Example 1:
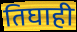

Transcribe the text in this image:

तिघाही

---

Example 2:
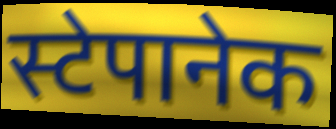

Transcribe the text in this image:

स्टेपानेक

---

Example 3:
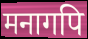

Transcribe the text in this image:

मनागपि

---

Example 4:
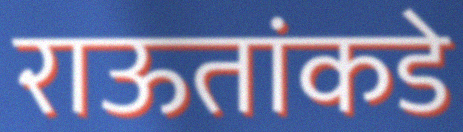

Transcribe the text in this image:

राऊतांकडे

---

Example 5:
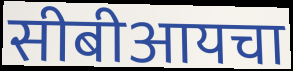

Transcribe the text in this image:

सीबीआयचा